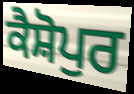
ਕੈਸ਼ੋਪੁਰ